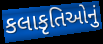
કલાકૃતિઓનું